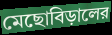
মেছোবিড়ালের